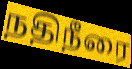
நதிநீரை